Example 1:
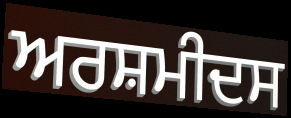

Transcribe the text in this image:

ਅਰਸ਼ਮੀਦਸ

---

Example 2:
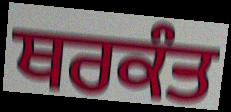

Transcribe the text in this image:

ਥਰਕੰਤ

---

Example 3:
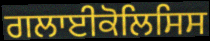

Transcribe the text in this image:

ਗਲਾਈਕੋਲਿਸਿਸ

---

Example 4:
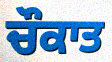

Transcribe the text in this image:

ਚੌਕਾਤ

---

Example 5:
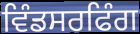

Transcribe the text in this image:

ਵਿੰਡਸਰਫਿੰਗ